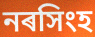
নৰসিংহ